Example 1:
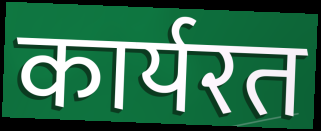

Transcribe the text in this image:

कार्यरत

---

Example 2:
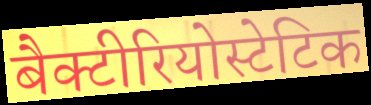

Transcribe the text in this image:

बैक्टीरियोस्टेटिक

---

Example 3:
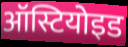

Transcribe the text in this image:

ऑस्टियोइड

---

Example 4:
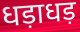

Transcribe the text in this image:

धड़ाधड़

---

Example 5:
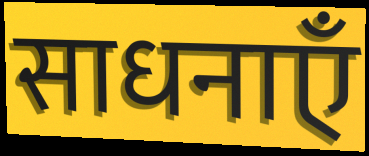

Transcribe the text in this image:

साधनाएँ